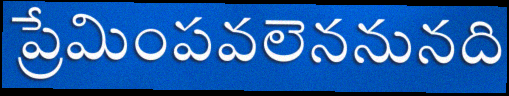
ప్రేమింపవలెననునది